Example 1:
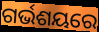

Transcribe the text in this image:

ଗର୍ଭଶୟରେ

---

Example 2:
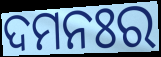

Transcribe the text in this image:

ଦମନଃର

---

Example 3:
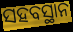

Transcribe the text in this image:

ସହବସ୍ଥାନ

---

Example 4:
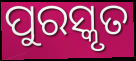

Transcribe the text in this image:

ପୁରସ୍କୃତ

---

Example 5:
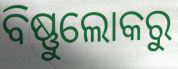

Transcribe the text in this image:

ବିଷ୍ଣୁଲୋକରୁ